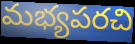
మభ్యపరచి